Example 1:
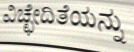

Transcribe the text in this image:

ವಿಚ್ಛೇದಿತೆಯನ್ನು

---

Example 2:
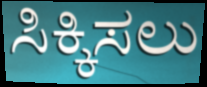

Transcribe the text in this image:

ಸಿಕ್ಕಿಸಲು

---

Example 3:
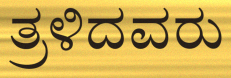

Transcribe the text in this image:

ತ್ರಳಿದವರು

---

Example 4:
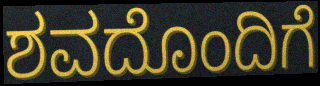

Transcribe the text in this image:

ಶವದೊಂದಿಗೆ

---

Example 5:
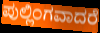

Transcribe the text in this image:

ಪುಲ್ಲಿಂಗವಾದರೆ